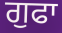
ਗੁਫਾ